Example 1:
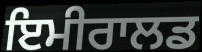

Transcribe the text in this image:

ਇਮੀਰਾਲਡ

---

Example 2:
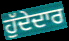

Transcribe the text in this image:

ਹੁੱਦੇਦਾਰ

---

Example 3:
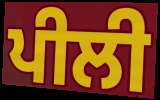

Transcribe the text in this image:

ਪੀਲੀ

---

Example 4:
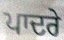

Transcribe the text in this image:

ਪਾਦਰੇ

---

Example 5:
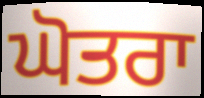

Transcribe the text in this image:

ਘੋਤਰਾ